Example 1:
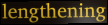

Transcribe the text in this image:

lengthening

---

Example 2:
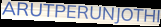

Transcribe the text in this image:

ARUTPERUNJOTHI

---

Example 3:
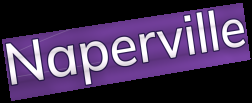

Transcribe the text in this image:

Naperville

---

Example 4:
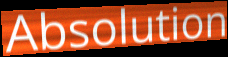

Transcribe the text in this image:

Absolution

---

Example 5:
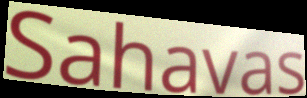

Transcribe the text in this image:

Sahavas